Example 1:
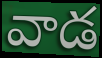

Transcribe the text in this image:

వాడ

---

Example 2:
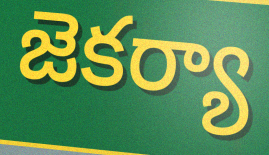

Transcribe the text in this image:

జెకర్యా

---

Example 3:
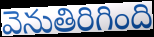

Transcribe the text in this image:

వెనుతిరిగింది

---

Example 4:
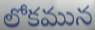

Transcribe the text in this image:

లోకమున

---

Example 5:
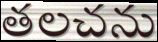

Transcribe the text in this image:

తలచను